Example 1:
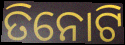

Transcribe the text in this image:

ତିନୋଟି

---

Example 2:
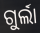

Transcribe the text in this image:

ଗୁର୍ଲା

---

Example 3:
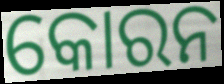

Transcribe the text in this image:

କୋରନ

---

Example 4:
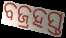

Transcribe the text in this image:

ବଜ୍ରହସ୍ତ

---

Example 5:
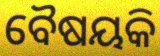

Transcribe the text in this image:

ବୈଷୟକି